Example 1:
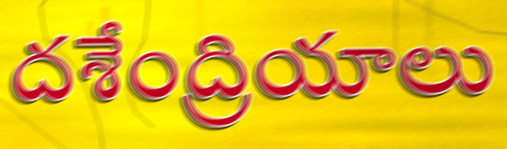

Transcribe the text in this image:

దశేంద్రియాలు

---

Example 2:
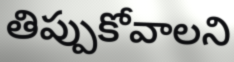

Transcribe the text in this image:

తిప్పుకోవాలని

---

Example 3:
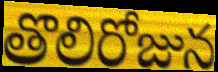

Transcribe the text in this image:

తొలిరోజున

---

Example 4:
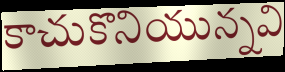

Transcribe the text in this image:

కాచుకొనియున్నవి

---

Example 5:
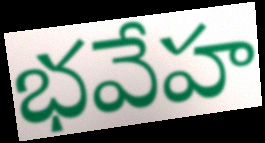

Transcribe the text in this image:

భవేహ